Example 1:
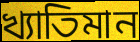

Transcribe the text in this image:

খ্যাতিমান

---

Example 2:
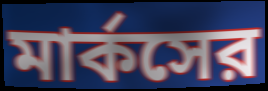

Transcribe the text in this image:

মার্কসের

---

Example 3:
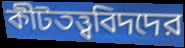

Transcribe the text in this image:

কীটতত্ত্ববিদদের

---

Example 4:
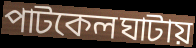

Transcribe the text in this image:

পাটকেলঘাটায়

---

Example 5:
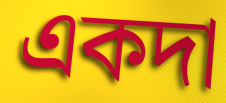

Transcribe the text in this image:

একদা